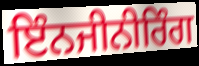
ਇੰਨਜੀਨੀਰਿੰਗ